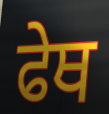
ਫੇਥ